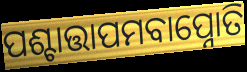
ପଶ୍ଚାତ୍ତାପମବାପ୍ନୋତି